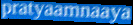
pratyaamnaaya